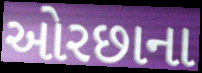
ઓરછાના